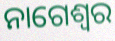
ନାଗେଶ୍ଵର